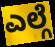
ಎಲ್ಗೆ